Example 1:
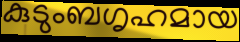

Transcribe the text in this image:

കുടുംബഗൃഹമായ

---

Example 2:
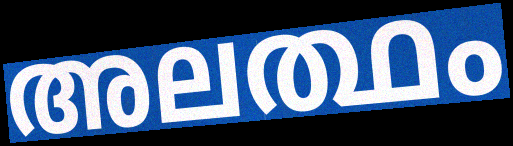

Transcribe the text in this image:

അലത്ഥം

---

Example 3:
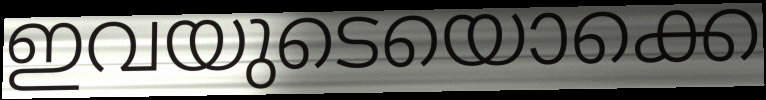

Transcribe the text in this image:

ഇവയുടെയൊക്കെ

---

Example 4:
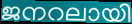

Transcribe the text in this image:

ജനറലായി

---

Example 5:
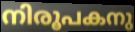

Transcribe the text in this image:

നിരൂപകനു